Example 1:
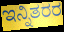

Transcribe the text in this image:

ಇನ್ನಿತರರ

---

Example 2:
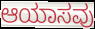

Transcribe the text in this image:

ಆಯಾಸವು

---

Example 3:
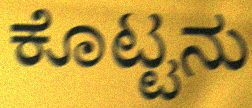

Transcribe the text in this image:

ಕೊಟ್ಟನು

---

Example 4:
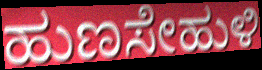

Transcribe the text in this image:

ಹುಣಸೇಹುಳಿ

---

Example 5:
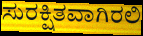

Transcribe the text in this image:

ಸುರಕ್ಷಿತವಾಗಿರಲಿ